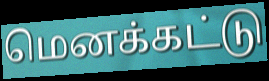
மெனக்கட்டு